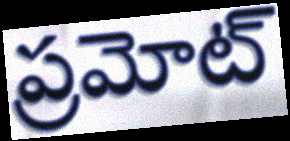
ప్రమోట్